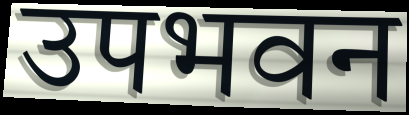
उपभवन